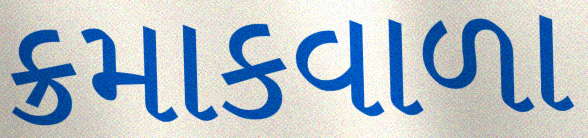
ક્રમાકવાળા